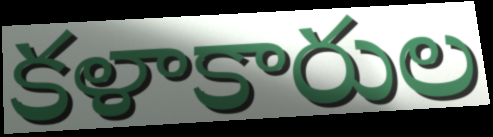
కళాకారుల